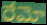
రేమో